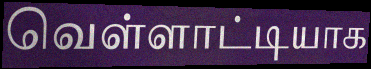
வெள்ளாட்டியாக